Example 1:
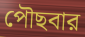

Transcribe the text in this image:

পৌছবার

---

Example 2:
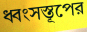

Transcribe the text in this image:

ধ্বংসস্তূপের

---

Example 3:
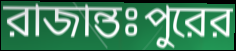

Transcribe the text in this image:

রাজান্তঃপুরের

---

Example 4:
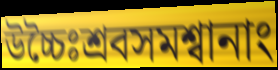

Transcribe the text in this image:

উচ্চৈঃশ্রবসমশ্বানাং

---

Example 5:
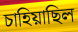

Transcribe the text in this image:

চাহিয়াছিল